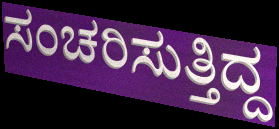
ಸಂಚರಿಸುತ್ತಿದ್ದ